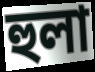
হুলা